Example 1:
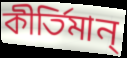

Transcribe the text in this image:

কীর্তিমান্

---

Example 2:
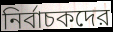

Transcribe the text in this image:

নির্বাচকদের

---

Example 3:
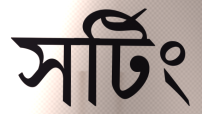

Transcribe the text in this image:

সর্টিং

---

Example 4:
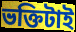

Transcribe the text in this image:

ভক্তিটাই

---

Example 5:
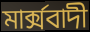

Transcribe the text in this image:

মার্ক্সবাদী